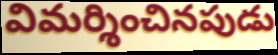
విమర్శించినపుడు